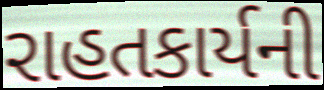
રાહતકાર્યની